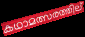
കഥാമത്സരത്തില്